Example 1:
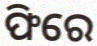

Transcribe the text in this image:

ଫିରେ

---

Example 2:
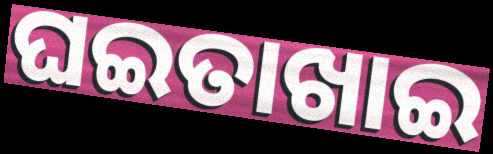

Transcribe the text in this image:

ଘଇତାଖାଇ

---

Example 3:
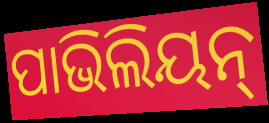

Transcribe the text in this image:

ପାଭିଲିୟନ୍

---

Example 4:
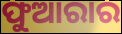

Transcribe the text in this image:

ଫୁଆରାର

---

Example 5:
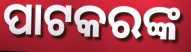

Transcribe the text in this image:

ପାଟକରଙ୍କ